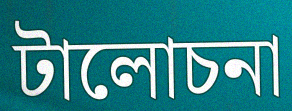
টালোচনা